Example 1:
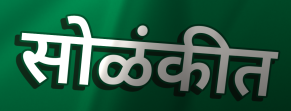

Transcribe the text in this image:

सोळंकीत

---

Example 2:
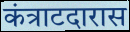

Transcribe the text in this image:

कंत्राटदारास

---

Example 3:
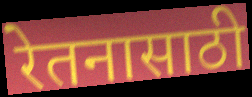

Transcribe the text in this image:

रेतनासाठी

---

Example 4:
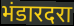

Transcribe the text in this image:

भंडारदरा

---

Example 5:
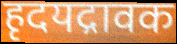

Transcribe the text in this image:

हृदयद्रावक